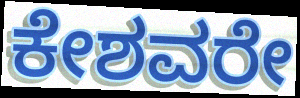
ಕೇಶವರೇ